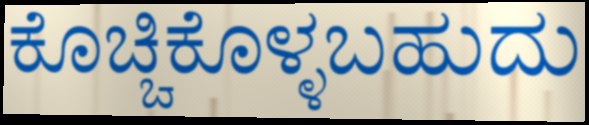
ಕೊಚ್ಚಿಕೊಳ್ಳಬಹುದು